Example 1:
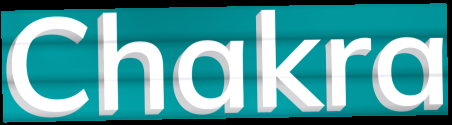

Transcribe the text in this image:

Chakra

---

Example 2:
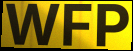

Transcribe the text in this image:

WFP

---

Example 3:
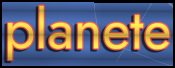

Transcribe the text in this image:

planete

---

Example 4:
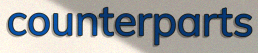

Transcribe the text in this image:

counterparts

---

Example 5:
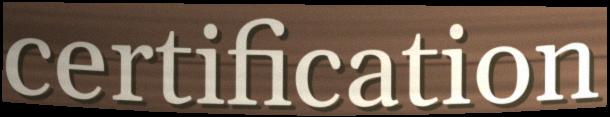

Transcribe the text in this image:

certification